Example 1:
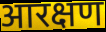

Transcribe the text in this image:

आरक्षण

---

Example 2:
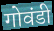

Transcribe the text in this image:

गोवंडी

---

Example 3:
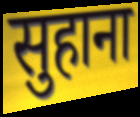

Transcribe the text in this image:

सुहाना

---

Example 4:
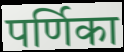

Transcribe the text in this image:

पर्णिका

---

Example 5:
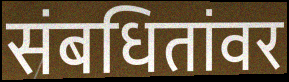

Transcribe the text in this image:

संबधितांवर